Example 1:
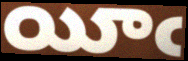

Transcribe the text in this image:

యీఁ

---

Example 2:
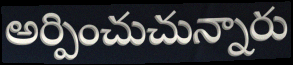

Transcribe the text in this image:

అర్పించుచున్నారు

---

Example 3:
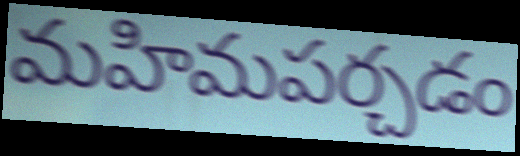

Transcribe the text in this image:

మహిమపర్చడం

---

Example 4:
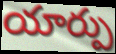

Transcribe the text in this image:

యార్పు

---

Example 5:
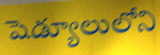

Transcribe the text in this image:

షెడ్యూలులోని